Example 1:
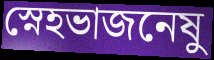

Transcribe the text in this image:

স্নেহভাজনেষু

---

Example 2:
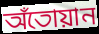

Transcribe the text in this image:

অঁতোয়ান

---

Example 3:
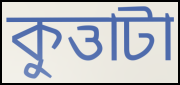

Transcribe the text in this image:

কুত্তাটা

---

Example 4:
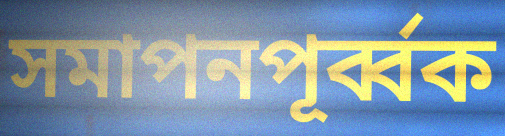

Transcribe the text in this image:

সমাপনপূর্ব্বক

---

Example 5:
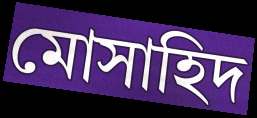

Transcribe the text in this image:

মোসাহিদ